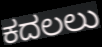
ಕದಲಲು